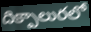
దిక్పాలురలో